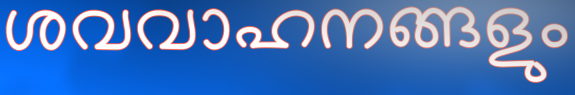
ശവവാഹനങ്ങളും